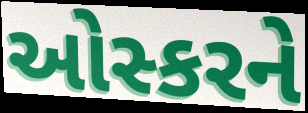
ઓસ્કરને